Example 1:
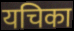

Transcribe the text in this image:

यचिका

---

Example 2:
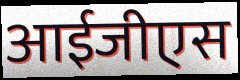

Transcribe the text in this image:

आईजीएस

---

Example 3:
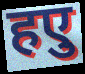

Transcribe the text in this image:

हएु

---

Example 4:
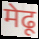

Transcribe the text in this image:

मेढू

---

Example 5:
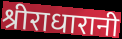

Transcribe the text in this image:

श्रीराधारानी